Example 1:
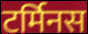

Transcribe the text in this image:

टर्मिनस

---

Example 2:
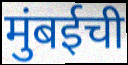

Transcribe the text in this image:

मुंबईची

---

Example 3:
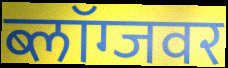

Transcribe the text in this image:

ब्लॉग्जवर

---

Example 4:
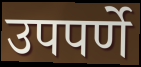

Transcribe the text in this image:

उपपर्णे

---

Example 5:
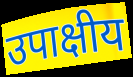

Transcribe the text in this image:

उपाक्षीय